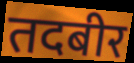
तदबीर